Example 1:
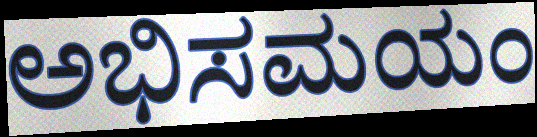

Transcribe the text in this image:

ಅಭಿಸಮಯಂ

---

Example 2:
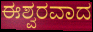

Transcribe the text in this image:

ಈಶ್ವರವಾದ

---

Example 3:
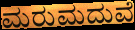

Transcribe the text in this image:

ಮರುಮದುವೆ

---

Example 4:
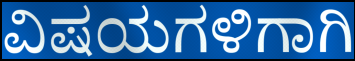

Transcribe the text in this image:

ವಿಷಯಗಳಿಗಾಗಿ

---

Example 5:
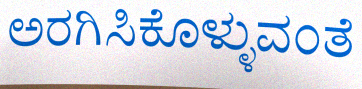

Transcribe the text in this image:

ಅರಗಿಸಿಕೊಳ್ಳುವಂತೆ